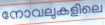
നോവലുകളിലെ